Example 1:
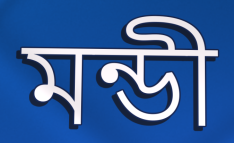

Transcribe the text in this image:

মন্ডী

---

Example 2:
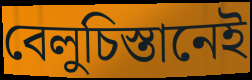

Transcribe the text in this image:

বেলুচিস্তানেই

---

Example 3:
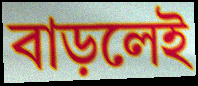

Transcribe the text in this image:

বাড়লেই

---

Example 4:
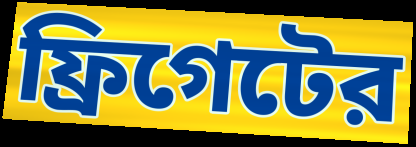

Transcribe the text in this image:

ফ্রিগেটের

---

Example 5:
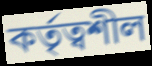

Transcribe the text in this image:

কর্তৃত্বশীল